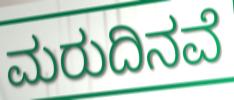
ಮರುದಿನವೆ